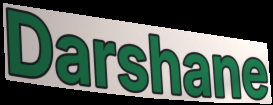
Darshane